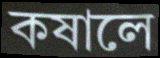
কষালে